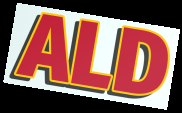
ALD